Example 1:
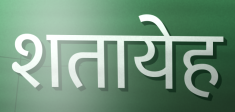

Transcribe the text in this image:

शतायेह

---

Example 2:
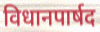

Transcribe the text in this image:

विधानपार्षद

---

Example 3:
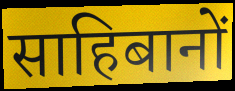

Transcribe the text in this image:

साहिबानों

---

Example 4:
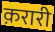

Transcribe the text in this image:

क़रारी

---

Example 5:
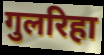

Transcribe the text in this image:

गुलरिहा